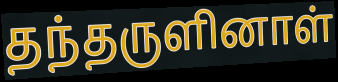
தந்தருளினாள்